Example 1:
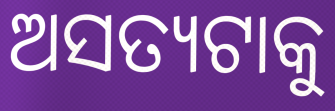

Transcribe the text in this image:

ଅସତ୍ୟଟାକୁ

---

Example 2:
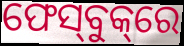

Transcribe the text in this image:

ଫେସ୍‌ବୁକ୍‌ରେ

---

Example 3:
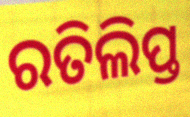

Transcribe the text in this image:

ରତିଲିପ୍ତ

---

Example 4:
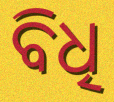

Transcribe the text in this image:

ବିଧି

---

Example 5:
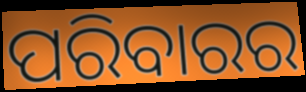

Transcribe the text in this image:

ପରିବାରର